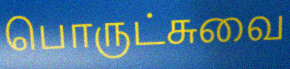
பொருட்சுவை